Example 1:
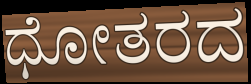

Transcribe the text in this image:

ಧೋತರದ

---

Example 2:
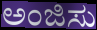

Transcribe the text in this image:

ಅಂಜಿಸು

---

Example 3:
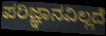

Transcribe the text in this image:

ಪರಿಜ್ಞಾನವಿಲ್ಲದೆ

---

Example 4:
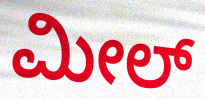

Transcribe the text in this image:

ಮೀಲ್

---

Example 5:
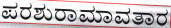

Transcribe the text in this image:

ಪರಶುರಾಮಾವತಾರ